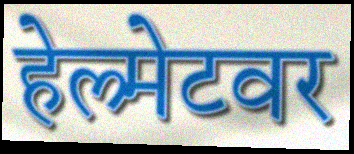
हेल्मेटवर